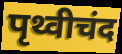
पृथ्वीचंद